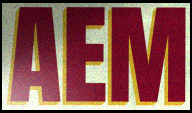
AEM